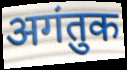
अगंतुक